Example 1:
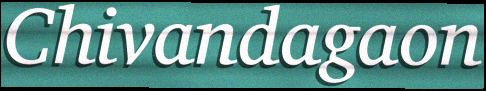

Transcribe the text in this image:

Chivandagaon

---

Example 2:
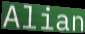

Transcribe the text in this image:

Alian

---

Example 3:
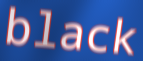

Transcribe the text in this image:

black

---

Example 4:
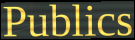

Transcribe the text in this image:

Publics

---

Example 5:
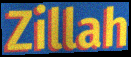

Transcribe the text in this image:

Zillah